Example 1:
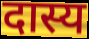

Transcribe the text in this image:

दास्य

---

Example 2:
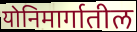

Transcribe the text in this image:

योनिमार्गातील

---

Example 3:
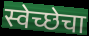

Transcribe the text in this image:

स्वेच्छेचा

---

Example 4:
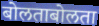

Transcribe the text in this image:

बोलताबोलता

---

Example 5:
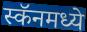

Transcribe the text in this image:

स्कॅनमध्ये